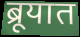
ब्रूयात